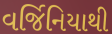
વર્જિનિયાથી